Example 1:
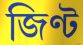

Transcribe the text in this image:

জিণ্ট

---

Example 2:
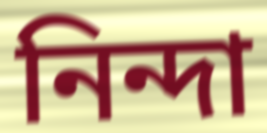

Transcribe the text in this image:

নিন্দা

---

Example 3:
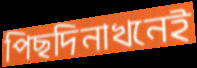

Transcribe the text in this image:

পিছদিনাখনেই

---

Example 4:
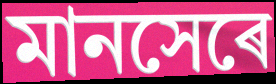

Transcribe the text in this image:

মানসেৰে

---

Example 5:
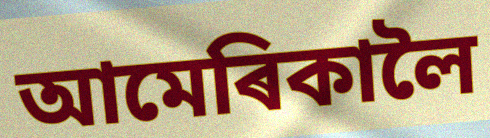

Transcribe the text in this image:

আমেৰিকালৈ